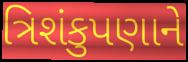
ત્રિશંકુપણાને